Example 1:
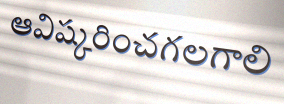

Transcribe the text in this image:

ఆవిష్కరించగలగాలి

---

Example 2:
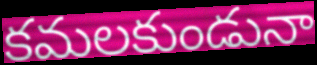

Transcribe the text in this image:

కమలకుండునా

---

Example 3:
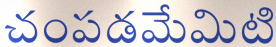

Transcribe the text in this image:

చంపడమేమిటి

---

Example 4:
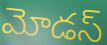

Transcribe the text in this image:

మోడస్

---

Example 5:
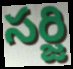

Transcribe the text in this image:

సర్జి